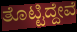
ತೊಟ್ಟಿದ್ದೇವೆ